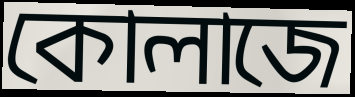
কোলাজে